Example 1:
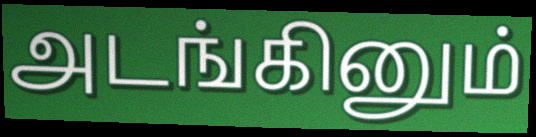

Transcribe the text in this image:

அடங்கினும்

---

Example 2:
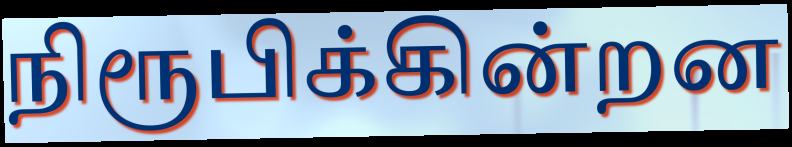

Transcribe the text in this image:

நிரூபிக்கின்றன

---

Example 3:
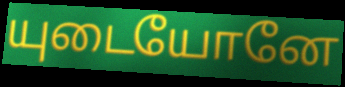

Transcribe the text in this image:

யுடையோனே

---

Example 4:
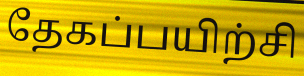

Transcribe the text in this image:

தேகப்பயிற்சி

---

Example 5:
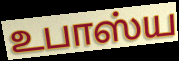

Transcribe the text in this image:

உபாஸ்ய